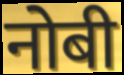
नोबी